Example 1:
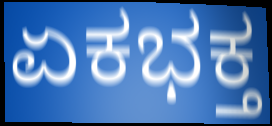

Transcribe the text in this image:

ಏಕಭಕ್ತ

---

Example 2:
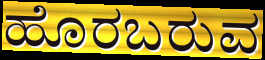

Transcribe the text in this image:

ಹೊರಬರುವ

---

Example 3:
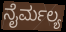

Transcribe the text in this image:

ನೈರ್ಮಲ್ಯ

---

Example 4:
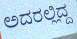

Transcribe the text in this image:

ಅದರಲ್ಲಿದ್ದ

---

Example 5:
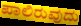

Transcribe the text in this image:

ಪಾಲಿರುವುದು